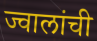
ज्वालांची